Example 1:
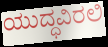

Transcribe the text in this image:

ಯುದ್ಧವಿರಲಿ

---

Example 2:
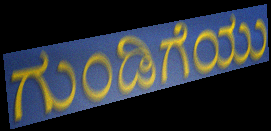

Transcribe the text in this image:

ಗುಂಡಿಗೆಯು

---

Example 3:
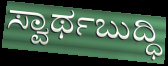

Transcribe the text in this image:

ಸ್ವಾರ್ಥಬುದ್ಧಿ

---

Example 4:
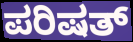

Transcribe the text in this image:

ಪರಿಷತ್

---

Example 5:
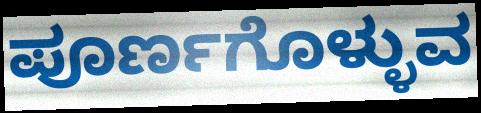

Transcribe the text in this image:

ಪೂರ್ಣಗೊಳ್ಳುವ